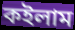
কইলাম